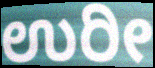
ಉರೀ